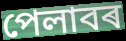
পেলাবৰ